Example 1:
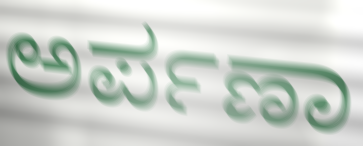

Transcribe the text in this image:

ಅರ್ಪಣಾ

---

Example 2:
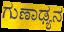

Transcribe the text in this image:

ಗುಣಾಢ್ಯನ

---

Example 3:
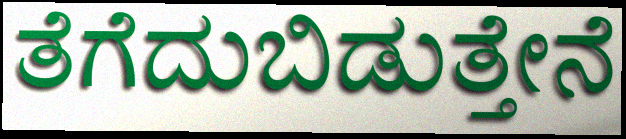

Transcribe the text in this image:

ತೆಗೆದುಬಿಡುತ್ತೇನೆ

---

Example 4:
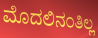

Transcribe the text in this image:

ಮೊದಲಿನಂತಿಲ್ಲ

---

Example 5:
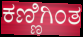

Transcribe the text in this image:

ಕಣ್ಣಿಗಿಂತ